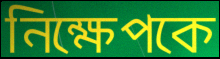
নিক্ষেপকে